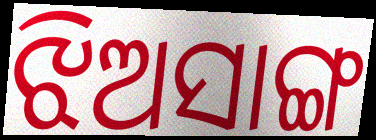
ଝିଅସାଙ୍ଗ